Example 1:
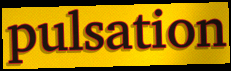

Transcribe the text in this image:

pulsation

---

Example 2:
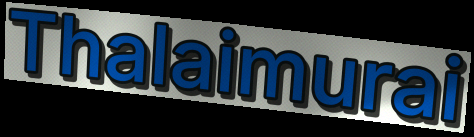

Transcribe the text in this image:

Thalaimurai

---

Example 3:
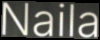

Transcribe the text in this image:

Naila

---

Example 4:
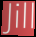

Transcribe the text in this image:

Jill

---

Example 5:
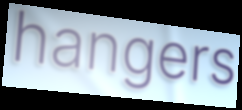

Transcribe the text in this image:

hangers